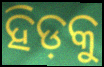
ହିଡ଼କୁ